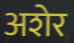
अशेर